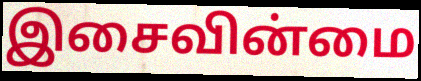
இசைவின்மை